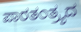
ಪಾರತಂತ್ರ್ಯದ